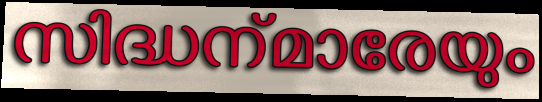
സിദ്ധന്‌മാരേയും